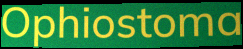
Ophiostoma